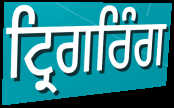
ਟ੍ਰਿਗਰਿੰਗ